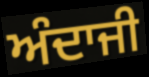
ਅੰਦਾਜੀ